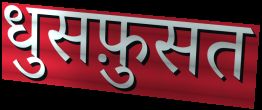
धुसफ़ुसत